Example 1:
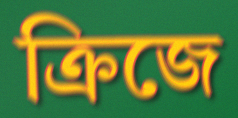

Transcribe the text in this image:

ক্রিজে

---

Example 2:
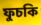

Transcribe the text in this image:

ফুচকি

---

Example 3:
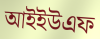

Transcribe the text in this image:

আইইউএফ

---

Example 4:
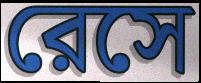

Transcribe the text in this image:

রেসে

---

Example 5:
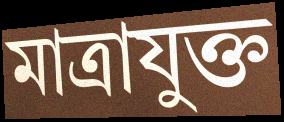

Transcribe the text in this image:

মাত্রাযুক্ত